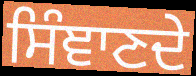
ਸਿੰਞਾਣਦੇ